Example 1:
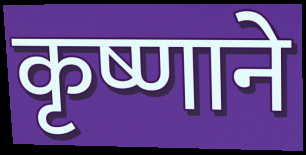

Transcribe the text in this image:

कृष्णाने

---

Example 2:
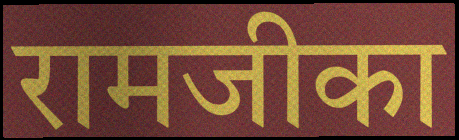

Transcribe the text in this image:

रामजीका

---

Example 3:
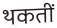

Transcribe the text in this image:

थकतीं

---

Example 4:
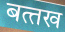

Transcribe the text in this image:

बत्‍तख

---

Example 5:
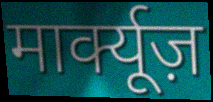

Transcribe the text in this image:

मार्क्यूज़